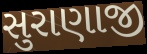
સુરાણાજી